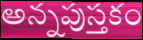
అన్నపుస్తకం